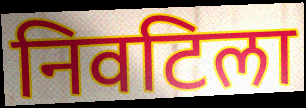
निवटिला